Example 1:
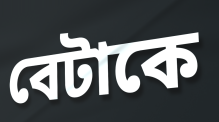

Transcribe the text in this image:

বেটাকে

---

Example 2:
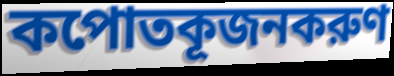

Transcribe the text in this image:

কপোতকূজনকরুণ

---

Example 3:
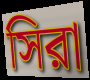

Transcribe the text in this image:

সিরা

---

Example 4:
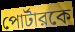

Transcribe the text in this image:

পোর্টারকে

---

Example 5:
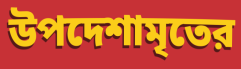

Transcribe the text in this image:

উপদেশামৃতের